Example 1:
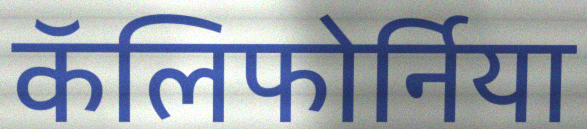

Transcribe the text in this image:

कॅलिफोर्निया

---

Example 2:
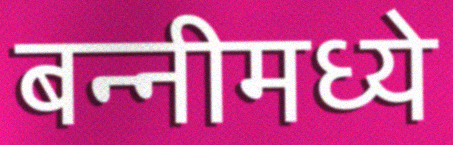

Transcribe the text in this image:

बन्नीमध्ये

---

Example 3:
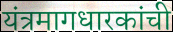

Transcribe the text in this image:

यंत्रमागधारकांची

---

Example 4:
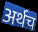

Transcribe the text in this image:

अर्थच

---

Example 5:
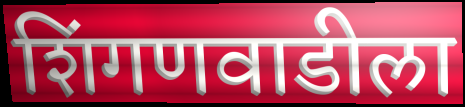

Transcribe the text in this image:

शिंगणवाडीला